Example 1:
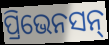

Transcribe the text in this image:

ପ୍ରିଭେନସନ୍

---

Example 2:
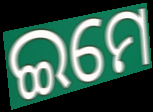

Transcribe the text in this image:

ଇମେ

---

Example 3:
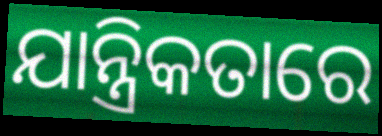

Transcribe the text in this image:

ଯାନ୍ତ୍ରିକତାରେ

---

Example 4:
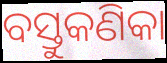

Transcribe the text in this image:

ବସ୍ତୁକଣିକା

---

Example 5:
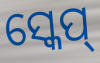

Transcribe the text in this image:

ସ୍କେପ୍